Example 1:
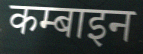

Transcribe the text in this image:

कम्बाइन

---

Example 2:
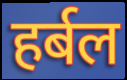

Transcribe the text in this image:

हर्बल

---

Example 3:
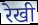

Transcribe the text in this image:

रेखी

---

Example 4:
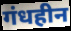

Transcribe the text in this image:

गंधहीन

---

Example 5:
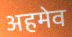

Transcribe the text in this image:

अहमेव